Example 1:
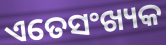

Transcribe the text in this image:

ଏତେସଂଖ୍ୟକ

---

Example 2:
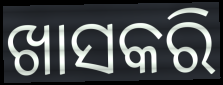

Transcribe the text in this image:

ଖାସକରି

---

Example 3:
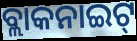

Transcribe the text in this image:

ବ୍ଲାକନାଇଟ୍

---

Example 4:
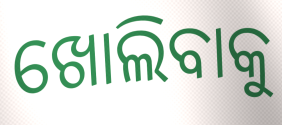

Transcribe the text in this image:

ଖୋଲିବାକୁ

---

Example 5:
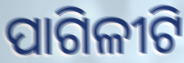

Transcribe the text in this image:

ପାଗିଳୀଟି